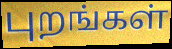
புறங்கள்